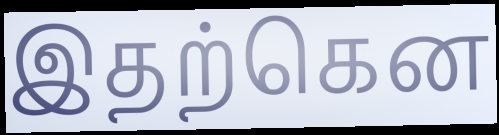
இதற்கென